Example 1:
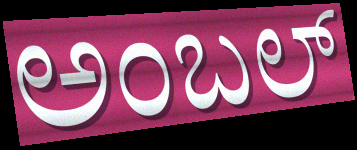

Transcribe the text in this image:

ಅಂಬಲ್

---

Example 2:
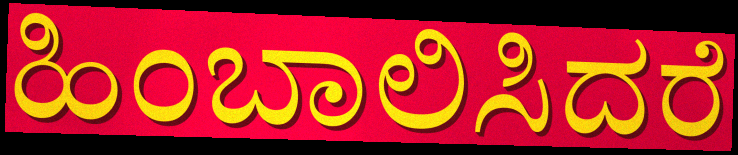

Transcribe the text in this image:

ಹಿಂಬಾಲಿಸಿದರೆ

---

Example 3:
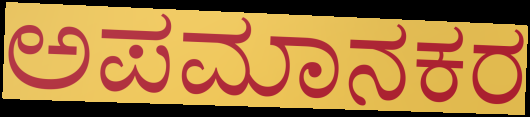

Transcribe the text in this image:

ಅಪಮಾನಕರ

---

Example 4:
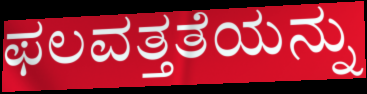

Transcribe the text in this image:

ಫಲವತ್ತತೆಯನ್ನು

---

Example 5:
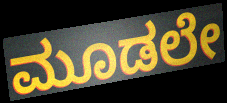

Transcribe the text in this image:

ಮೂಡಲೇ